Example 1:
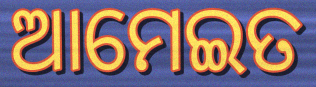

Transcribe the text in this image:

ଆମେଇତ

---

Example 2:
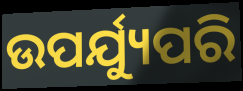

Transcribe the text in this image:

ଉପର୍ଯ୍ୟୁପରି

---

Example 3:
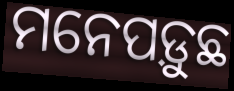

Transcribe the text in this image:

ମନେପଡ଼ୁଛ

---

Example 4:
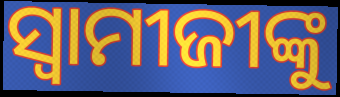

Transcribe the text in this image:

ସ୍ଵାମୀଜୀଙ୍କୁ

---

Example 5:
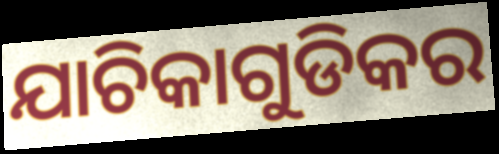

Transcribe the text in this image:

ଯାଚିକାଗୁଡିକର